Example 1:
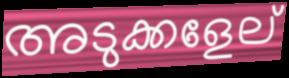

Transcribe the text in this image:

അടുക്കളേല്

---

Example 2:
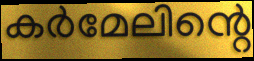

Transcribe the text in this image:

കർമേലിന്റെ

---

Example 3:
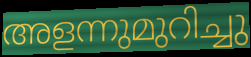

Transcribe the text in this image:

അളന്നുമുറിച്ചു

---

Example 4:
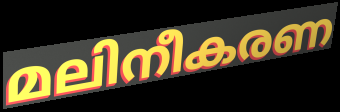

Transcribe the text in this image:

മലിനീകരണ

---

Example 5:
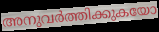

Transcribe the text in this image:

അനുവർത്തിക്കുകയോ